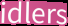
idlers